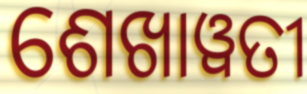
ଶେଖାୱତୀ